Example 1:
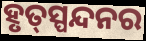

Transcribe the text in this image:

ହୃତ୍‌ସ୍ପନ୍ଦନର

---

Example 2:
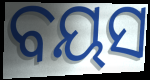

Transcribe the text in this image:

ବୟସ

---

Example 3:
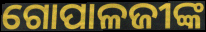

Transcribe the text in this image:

ଗୋପାଳଜୀଙ୍କ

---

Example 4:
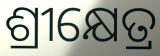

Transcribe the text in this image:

ଶ୍ରୀକ୍ଷେତ୍ର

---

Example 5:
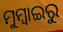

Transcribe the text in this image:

ମୁମ୍ବାଇରୁ